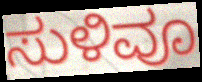
ಸುಳಿವೂ